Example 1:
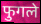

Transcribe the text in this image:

फुगले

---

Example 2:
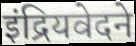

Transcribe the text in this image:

इंद्रियवेदने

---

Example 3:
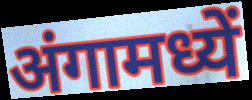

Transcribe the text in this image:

अंगामध्यें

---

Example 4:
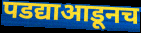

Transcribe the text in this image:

पडद्याआडूनच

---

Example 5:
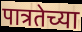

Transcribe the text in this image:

पात्रतेच्या